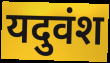
यदुवंश